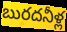
బురదనీళ్ల